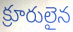
క్రూరులైన